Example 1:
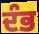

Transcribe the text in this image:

ਦੰਭ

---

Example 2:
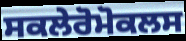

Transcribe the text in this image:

ਸਕਲੇਰੋਮੋਕਲਸ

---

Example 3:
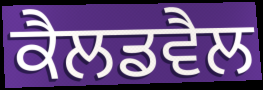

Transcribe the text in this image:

ਕੈਲਡਵੈਲ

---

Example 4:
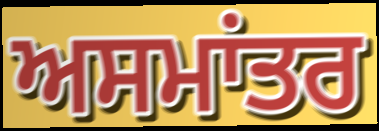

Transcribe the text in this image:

ਅਸਮਾਂਤਰ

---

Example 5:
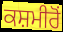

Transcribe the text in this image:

ਕਸ਼ਮੀਰੋਂ